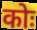
कोः